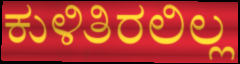
ಕುಳಿತಿರಲಿಲ್ಲ